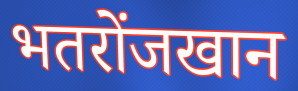
भतरोंजखान